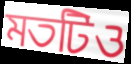
মতটিও